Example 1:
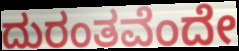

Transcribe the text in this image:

ದುರಂತವೆಂದೇ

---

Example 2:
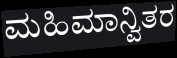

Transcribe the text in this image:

ಮಹಿಮಾನ್ವಿತರ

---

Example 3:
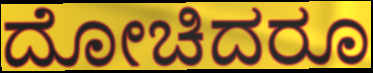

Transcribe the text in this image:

ದೋಚಿದರೂ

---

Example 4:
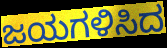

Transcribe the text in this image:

ಜಯಗಳಿಸಿದ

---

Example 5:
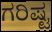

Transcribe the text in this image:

ಗರಿಷ್ಟ